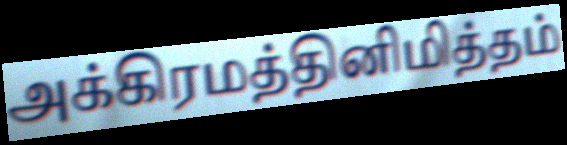
அக்கிரமத்தினிமித்தம்